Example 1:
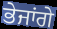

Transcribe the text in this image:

ਭੇਜਾਂਗੇ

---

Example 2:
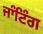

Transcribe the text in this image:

ਜਾੰਟਿੰਗ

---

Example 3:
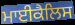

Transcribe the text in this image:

ਮਾਈਕੈਲਿਸ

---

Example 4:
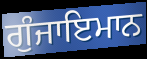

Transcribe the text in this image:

ਗੁੰਜਾਇਮਾਨ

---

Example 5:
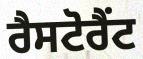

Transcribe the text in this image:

ਰੈਸਟੋਰੈਂਟ